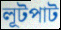
লূটপাট